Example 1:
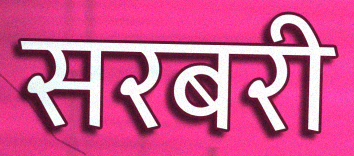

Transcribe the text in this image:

सरबरी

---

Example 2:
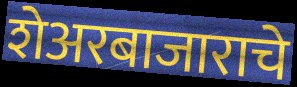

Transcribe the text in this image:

शेअरबाजाराचे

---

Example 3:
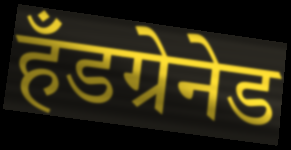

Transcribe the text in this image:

हँडग्रेनेड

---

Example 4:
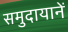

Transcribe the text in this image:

समुदायानें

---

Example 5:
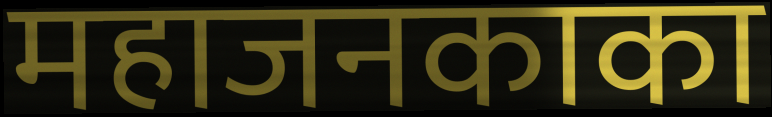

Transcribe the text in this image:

महाजनकाका